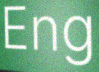
Eng